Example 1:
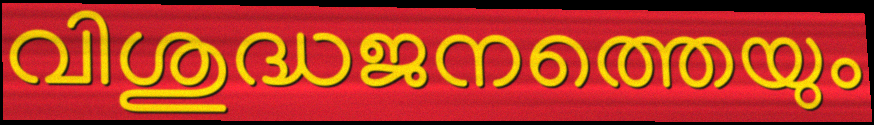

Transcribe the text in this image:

വിശുദ്ധജനത്തെയും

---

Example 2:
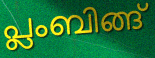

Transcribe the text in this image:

പ്ലംബിങ്ങ്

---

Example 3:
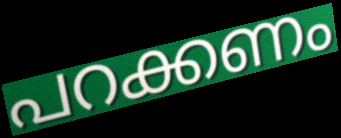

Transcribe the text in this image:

പറക്കണം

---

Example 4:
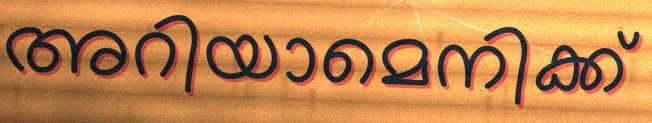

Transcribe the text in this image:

അറിയാമെനിക്ക്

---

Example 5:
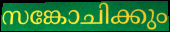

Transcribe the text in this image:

സങ്കോചിക്കും